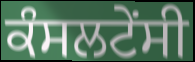
ਕੰਸਲਟੇਂਸੀ